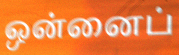
ஒன்னைப்